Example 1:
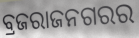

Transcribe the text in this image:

ବ୍ରଜରାଜନଗରର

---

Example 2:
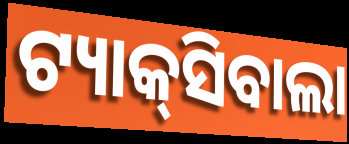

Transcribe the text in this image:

ଟ୍ୟାକ୍‌ସିବାଲା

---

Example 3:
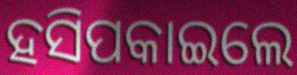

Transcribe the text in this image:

ହସିପକାଇଲେ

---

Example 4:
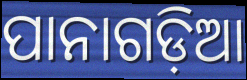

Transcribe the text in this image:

ପାନାଗଡ଼ିଆ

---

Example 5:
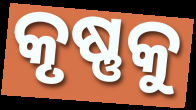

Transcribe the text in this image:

କୃଷ୍ଣକୁ